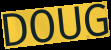
DOUG